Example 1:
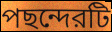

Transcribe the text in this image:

পছন্দেরটি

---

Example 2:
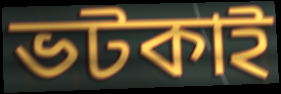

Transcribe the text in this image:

ভটকাই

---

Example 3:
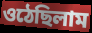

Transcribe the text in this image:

ওঠেছিলাম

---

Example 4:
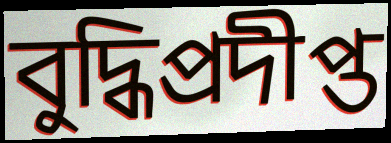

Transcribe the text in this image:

বুদ্ধিপ্রদীপ্ত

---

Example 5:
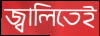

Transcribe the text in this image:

জ্বালিতেই